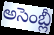
అసెంబ్లీ